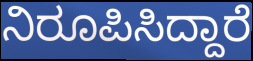
ನಿರೂಪಿಸಿದ್ದಾರೆ